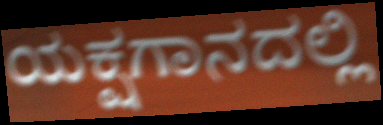
ಯಕ್ಷಗಾನದಲ್ಲಿ